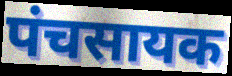
पंचसायक